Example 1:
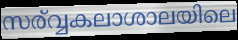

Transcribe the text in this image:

സര്വ്വകലാശാലയിലെ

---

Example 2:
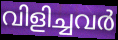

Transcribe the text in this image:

വിളിച്ചവർ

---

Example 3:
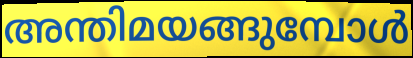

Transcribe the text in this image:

അന്തിമയങ്ങുമ്പോൾ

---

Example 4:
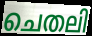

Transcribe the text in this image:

ചെതലി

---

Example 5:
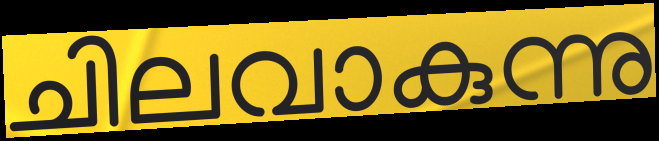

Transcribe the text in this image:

ചിലവാകുന്നു